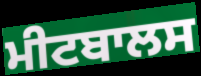
ਮੀਟਬਾਲਸ